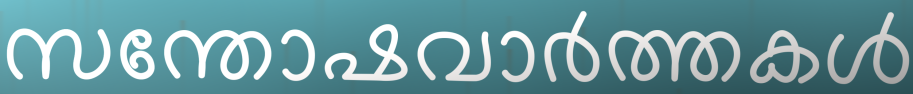
സന്തോഷവാർത്തകൾ